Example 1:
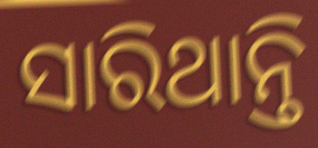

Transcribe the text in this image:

ସାରିଥାନ୍ତି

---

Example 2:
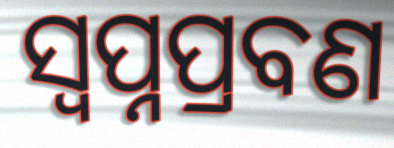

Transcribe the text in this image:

ସ୍ଵପ୍ନପ୍ରବଣ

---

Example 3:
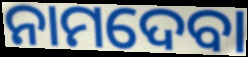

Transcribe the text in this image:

ନାମଦେବା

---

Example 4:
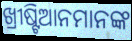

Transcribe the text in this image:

ଖ୍ରୀଷ୍ଟିଆନମାନଙ୍କ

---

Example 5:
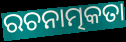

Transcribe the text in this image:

ରଚନାତ୍ମକତା